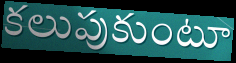
కలుపుకుంటూ